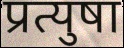
प्रत्युषा